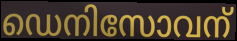
ഡെനിസോവന്